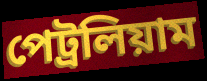
পেট্রলিয়াম